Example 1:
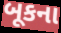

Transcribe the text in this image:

બૂકના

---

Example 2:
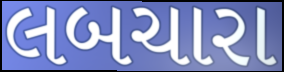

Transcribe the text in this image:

લબચારા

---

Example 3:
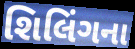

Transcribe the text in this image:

શિલિંગના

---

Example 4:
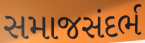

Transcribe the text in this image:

સમાજસંદર્ભ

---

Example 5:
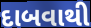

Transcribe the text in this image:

દાબવાથી